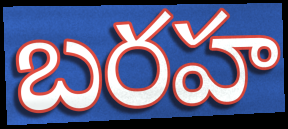
బరహ